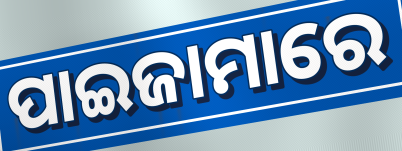
ପାଇଜାମାରେ